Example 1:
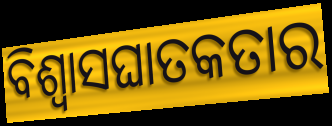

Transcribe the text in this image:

ବିଶ୍ୱାସଘାତକତାର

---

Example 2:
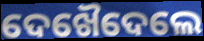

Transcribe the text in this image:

ଦେଖୈଦେଲେ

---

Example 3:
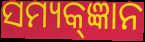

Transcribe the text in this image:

ସମ୍ୟକ୍‌ଜ୍ଞାନ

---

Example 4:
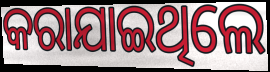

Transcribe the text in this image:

କରାଯାଇଥିଲେ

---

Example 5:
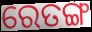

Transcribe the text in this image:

ରେତଙ୍ଗ